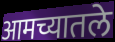
आमच्यातले